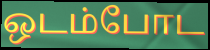
ஒடம்போட